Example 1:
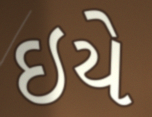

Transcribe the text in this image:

ઇયે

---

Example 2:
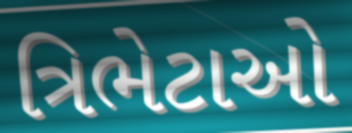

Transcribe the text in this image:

ત્રિભેટાઓ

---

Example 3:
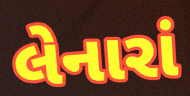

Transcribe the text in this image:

લેનારાં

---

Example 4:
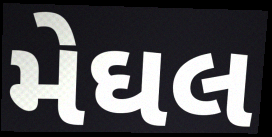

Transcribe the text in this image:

મેઘલ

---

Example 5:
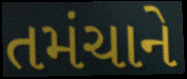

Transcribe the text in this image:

તમંચાને